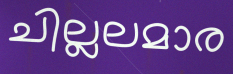
ചില്ലലമാര